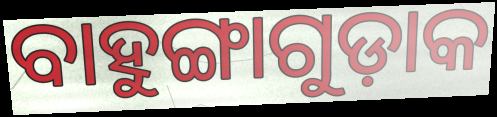
ବାହୁଙ୍ଗାଗୁଡ଼ାକ